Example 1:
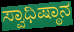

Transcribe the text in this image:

ಸ್ವಾಧಿಷ್ಠಾನ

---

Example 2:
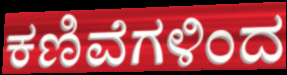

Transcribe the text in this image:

ಕಣಿವೆಗಳಿಂದ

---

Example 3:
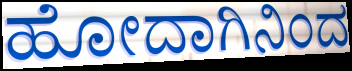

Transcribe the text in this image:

ಹೋದಾಗಿನಿಂದ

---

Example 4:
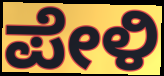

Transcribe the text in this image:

ಪೇಳಿ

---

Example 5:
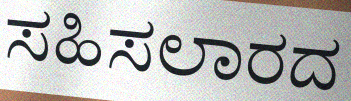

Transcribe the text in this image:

ಸಹಿಸಲಾರದ